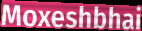
Moxeshbhai